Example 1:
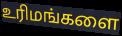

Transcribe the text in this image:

உரிமங்களை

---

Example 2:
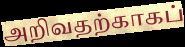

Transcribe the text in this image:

அறிவதற்காகப்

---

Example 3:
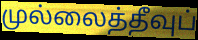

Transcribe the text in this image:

முல்லைத்தீவுப்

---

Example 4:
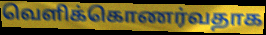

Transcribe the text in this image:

வெளிக்கொணர்வதாக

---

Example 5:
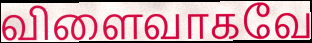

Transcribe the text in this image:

விளைவாகவே